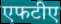
एफटीए